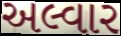
અલ્વાર